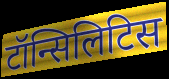
टॉन्सिलिटिस